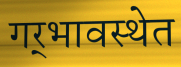
गर्भावस्थेत